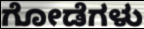
ಗೋಡೆಗಳು